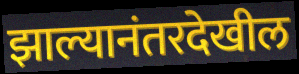
झाल्यानंतरदेखील